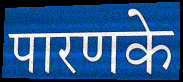
पारणके